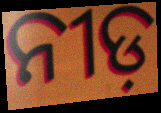
ନୀଡ଼